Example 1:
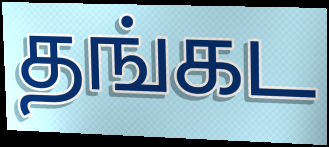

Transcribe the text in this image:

தங்கட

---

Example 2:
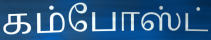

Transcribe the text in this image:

கம்போஸ்ட்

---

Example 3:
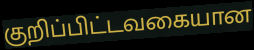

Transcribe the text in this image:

குறிப்பிட்டவகையான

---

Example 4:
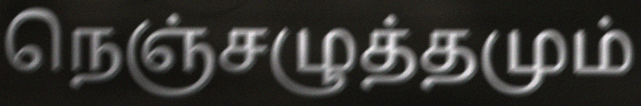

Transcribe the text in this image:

நெஞ்சழுத்தமும்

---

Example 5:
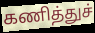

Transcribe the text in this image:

கணித்துச்